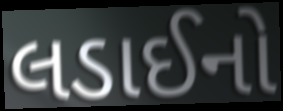
લડાઈનો